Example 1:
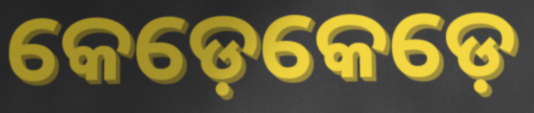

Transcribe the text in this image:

କେଡ଼େକେଡ଼େ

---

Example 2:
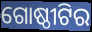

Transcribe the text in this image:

ଗୋଷ୍ଠୀଟିର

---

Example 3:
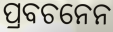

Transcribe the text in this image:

ପ୍ରବଚନେନ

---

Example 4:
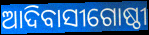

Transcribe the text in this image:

ଆଦିବାସୀଗୋଷ୍ଠୀ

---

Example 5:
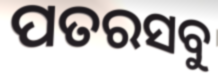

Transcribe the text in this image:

ପତରସବୁ